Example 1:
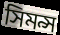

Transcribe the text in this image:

সিমন্স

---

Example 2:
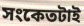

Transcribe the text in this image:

সংকেতটাই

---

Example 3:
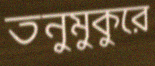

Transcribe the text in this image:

তনুমুকুরে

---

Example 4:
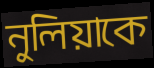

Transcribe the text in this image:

নুলিয়াকে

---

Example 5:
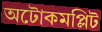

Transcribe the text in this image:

অটোকমপ্লিট